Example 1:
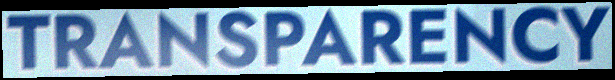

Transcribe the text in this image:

TRANSPARENCY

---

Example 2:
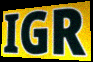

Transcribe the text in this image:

IGR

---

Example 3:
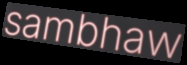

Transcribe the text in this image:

sambhaw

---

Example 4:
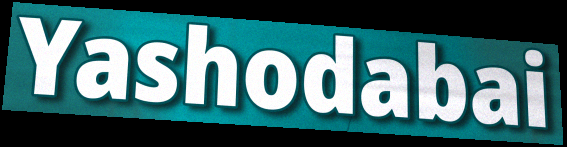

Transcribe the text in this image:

Yashodabai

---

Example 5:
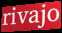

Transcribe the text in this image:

rivajo